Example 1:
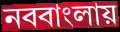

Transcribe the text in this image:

নববাংলায়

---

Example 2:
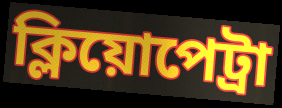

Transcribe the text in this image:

ক্লিয়োপেট্রা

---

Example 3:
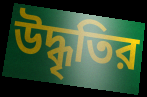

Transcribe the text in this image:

উদ্ধৃতির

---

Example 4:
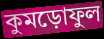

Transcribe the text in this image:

কুমড়োফুল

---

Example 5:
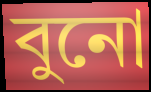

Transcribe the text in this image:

বুনো